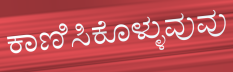
ಕಾಣಿಸಿಕೊಳ್ಳುವುವು